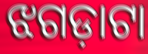
ଝଗଡ଼ାଟା